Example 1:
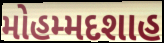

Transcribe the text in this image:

મોહમ્મદશાહ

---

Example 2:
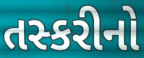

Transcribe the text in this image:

તસ્કરીનો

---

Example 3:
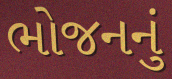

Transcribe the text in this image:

ભોજનનું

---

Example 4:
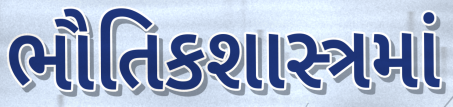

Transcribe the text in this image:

ભૌતિકશાસ્ત્રમાં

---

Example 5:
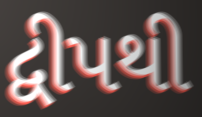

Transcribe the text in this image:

દ્વીપથી